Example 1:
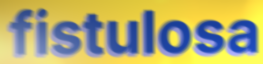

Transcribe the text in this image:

fistulosa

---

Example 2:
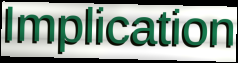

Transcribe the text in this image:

Implication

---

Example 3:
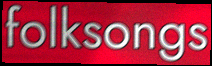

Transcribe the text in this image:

folksongs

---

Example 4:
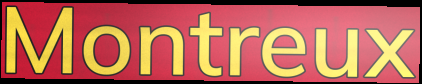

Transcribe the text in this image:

Montreux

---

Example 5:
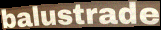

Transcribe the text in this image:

balustrade